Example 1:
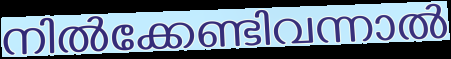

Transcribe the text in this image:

നിൽക്കേണ്ടിവന്നാൽ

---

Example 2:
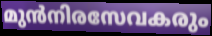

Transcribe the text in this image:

മുൻനിരസേവകരും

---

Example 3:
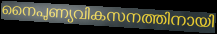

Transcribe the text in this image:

നൈപുണ്യവികസനത്തിനായി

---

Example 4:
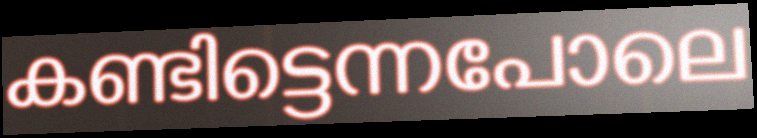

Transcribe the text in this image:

കണ്ടിട്ടെന്നപോലെ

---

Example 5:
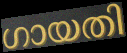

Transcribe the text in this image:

ഗായതി